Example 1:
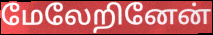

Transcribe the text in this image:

மேலேறினேன்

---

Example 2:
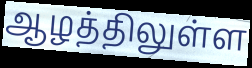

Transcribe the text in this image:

ஆழத்திலுள்ள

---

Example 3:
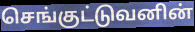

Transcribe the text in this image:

செங்குட்டுவனின்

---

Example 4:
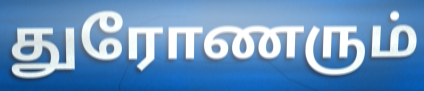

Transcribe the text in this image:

துரோணரும்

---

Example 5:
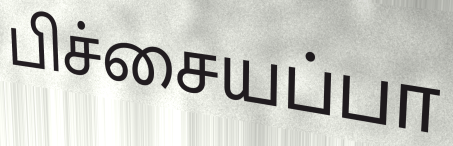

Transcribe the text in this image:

பிச்சையப்பா